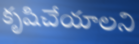
కృషిచేయాలని